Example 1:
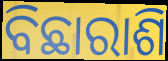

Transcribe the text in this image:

ବିଛାରାଶି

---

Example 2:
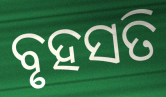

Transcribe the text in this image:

ବୃହସତି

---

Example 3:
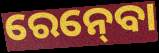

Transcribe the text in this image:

ରେନ୍‍ବୋ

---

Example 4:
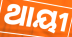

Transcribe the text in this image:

ଥାୟୀ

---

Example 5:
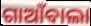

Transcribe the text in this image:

ଗାଆଁବାଲା